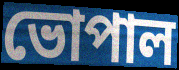
ভোপাল